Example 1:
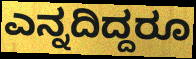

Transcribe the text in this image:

ಎನ್ನದಿದ್ದರೂ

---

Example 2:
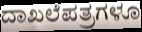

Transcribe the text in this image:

ದಾಖಲೆಪತ್ರಗಳೂ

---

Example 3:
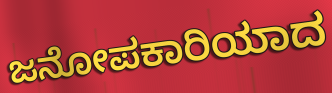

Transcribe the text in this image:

ಜನೋಪಕಾರಿಯಾದ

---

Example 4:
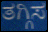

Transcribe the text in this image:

ತಗ್ಗಿಸ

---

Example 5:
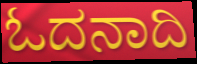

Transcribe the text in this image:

ಓದನಾದಿ